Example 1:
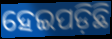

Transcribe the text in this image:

ହେଇପଡ଼ିଛି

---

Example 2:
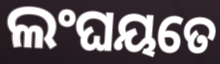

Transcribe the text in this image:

ଲଂଘୟତେ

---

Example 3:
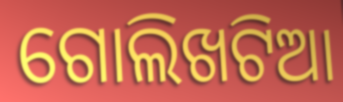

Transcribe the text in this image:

ଗୋଲିଖଟିଆ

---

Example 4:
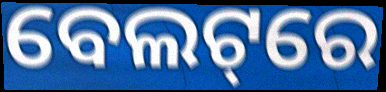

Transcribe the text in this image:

ବେଲଟ୍‌ରେ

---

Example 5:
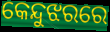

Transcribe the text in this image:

କେନ୍ଦୁଝରରେ